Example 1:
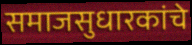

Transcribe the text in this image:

समाजसुधारकांचे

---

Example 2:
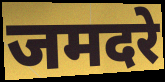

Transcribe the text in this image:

जमदरे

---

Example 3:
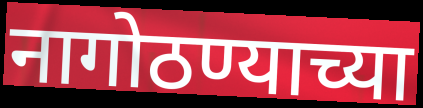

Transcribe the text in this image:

नागोठण्याच्या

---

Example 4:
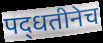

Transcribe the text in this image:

पद्धतीनेच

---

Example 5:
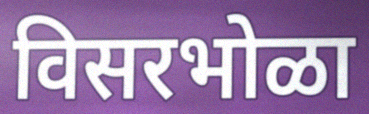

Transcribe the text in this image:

विसरभोळा